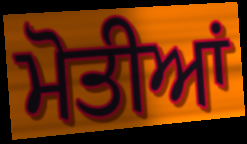
ਮੋਤੀਆਂ